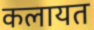
कलायत